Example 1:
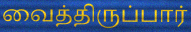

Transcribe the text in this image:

வைத்திருப்பார்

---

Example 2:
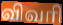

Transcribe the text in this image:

விவரி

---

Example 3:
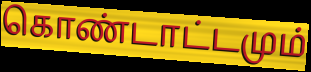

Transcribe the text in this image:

கொண்டாட்டமும்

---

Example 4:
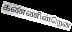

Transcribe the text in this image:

கண்ணின்றென்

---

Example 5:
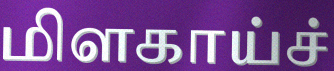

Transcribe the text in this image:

மிளகாய்ச்